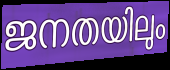
ജനതയിലും